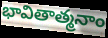
భావితాత్మనాం